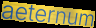
aeternum